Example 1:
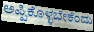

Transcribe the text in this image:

ಅಪ್ಪಿಕೊಳ್ಳಬೇಕೆಂದು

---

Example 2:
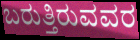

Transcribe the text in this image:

ಬರುತ್ತಿರುವವರ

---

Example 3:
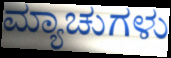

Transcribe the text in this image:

ಮ್ಯಾಚುಗಳು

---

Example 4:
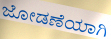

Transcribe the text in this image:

ಜೋಡಣೆಯಾಗಿ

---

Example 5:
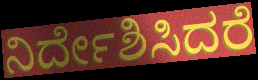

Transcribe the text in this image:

ನಿರ್ದೇಶಿಸಿದರೆ